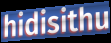
hidisithu